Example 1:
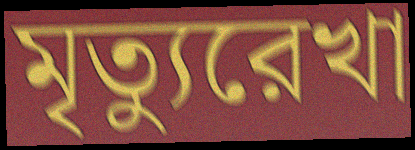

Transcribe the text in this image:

মৃত্যুরেখা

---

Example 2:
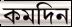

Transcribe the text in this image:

কমদিন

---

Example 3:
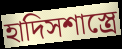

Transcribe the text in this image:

হাদিসশাস্ত্রে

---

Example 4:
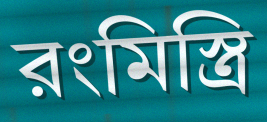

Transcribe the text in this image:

রংমিস্ত্রি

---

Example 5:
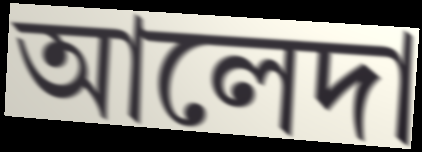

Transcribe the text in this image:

আলেদা